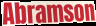
Abramson